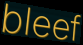
bleef